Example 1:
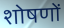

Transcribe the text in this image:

शोषणों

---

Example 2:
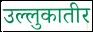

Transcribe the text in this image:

उल्लुकातीर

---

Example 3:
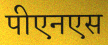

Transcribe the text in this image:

पीएनएस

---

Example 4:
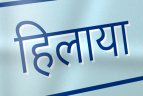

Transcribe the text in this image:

हिलाया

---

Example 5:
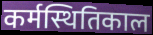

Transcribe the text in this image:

कर्मस्थितिकाल